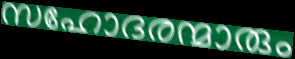
സഹോദരന്മാരും